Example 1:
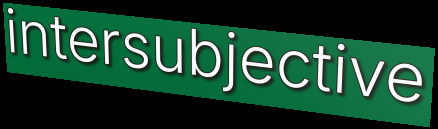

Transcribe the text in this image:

intersubjective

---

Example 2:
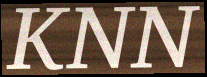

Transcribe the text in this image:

KNN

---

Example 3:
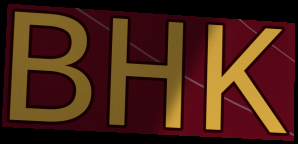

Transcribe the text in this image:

BHK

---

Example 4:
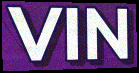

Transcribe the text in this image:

VIN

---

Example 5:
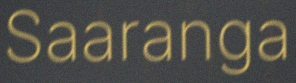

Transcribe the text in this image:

Saaranga